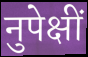
नुपेक्षीं